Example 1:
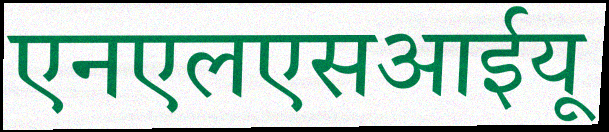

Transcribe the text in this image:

एनएलएसआईयू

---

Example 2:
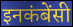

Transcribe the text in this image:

इनकंबेंसी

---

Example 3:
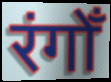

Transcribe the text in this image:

रंगोँ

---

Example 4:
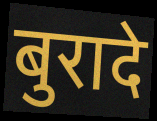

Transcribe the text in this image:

बुरादे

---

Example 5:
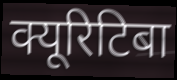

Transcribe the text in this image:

क्यूरिटिबा